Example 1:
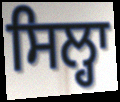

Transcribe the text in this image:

ਸਿਲ੍ਹਾ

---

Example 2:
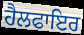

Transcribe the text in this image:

ਹੈਲਫਾਇਰ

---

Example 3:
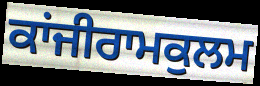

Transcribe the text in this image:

ਕਾਂਜੀਰਾਮਕੁਲਮ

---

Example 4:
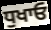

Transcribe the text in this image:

ਧੁਖਾਓ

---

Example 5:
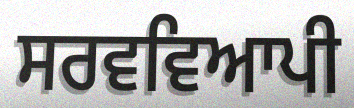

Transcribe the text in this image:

ਸਰਵਵਿਆਪੀ